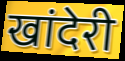
खांदेरी